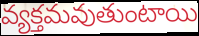
వ్యక్తమవుతుంటాయి